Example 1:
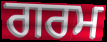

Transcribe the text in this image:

ਗਰਮ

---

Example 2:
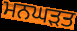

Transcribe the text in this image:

ਮਨਘੜਤ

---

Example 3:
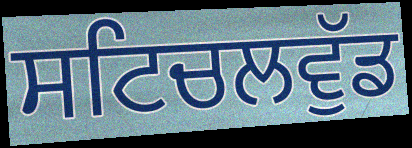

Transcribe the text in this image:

ਸਟਿਚਲਵੁੱਡ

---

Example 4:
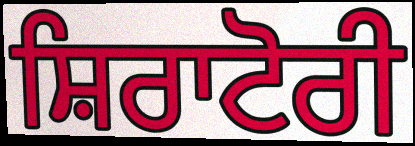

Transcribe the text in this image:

ਸ਼ਿਰਾਟੋਰੀ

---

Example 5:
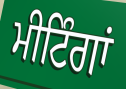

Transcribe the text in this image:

ਮੀਟਿੰਗਾਂ